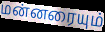
மன்னரையும்